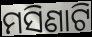
ମସିଣାଟି